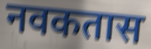
नवकतास